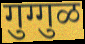
गुग्गुळ